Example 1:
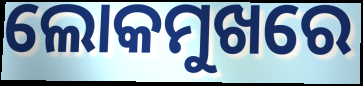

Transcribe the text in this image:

ଲୋକମୁଖରେ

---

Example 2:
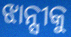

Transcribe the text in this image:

ଝାନ୍ସୀକୁ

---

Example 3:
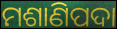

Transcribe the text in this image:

ମଶାଣିପଦା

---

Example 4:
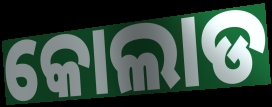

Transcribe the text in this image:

କୋଲାଡ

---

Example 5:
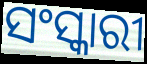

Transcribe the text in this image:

ସଂସ୍କାରୀ